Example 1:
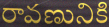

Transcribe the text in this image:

రావణునికి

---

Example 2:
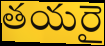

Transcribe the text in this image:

తయరై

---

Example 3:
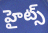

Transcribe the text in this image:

హైట్స్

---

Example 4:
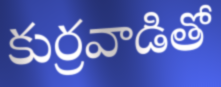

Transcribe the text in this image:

కుర్రవాడితో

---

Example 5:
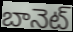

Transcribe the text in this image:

బానెట్